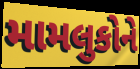
મામલુકોને